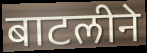
बाटलीने